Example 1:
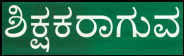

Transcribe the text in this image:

ಶಿಕ್ಷಕರಾಗುವ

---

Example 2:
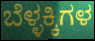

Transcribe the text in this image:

ಬೆಳ್ಳಕ್ಕಿಗಳ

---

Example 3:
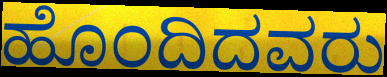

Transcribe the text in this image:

ಹೊಂದಿದವರು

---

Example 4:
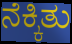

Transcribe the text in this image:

ನೆಕ್ಕಿತು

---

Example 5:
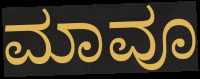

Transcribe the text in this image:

ಮಾವೂ